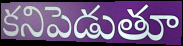
కనిపెడుతూ